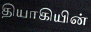
தியாகியின்